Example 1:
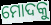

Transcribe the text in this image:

ମୋଦକୁ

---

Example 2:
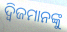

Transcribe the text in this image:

ଦ୍ଵିଜମାନଙ୍କୁ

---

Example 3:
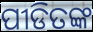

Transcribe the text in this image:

ପୀଡିତଙ୍କ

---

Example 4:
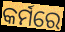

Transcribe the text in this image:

କର୍ମରେ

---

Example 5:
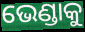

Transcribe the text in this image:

ଭେଣ୍ଡାକୁ